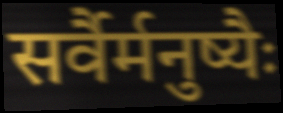
सर्वैर्मनुष्यैः